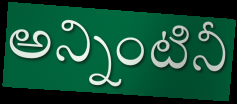
అన్నింటినీ